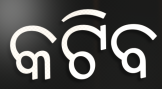
କଟିବ